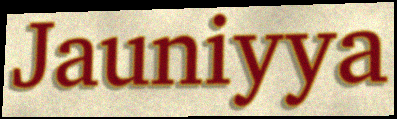
Jauniyya